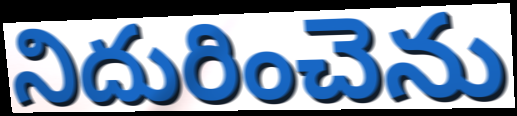
నిదురించెను